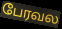
பேரவல